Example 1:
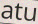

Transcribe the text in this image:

atu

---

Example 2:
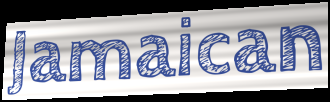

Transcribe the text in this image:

Jamaican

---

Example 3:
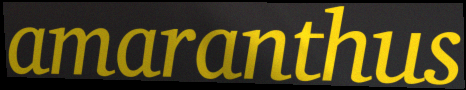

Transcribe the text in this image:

amaranthus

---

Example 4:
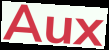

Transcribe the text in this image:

Aux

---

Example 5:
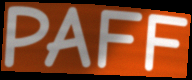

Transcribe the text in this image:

PAFF